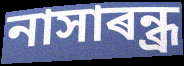
নাসাৰন্ধ্ৰ